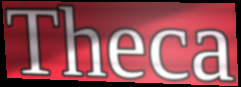
Theca